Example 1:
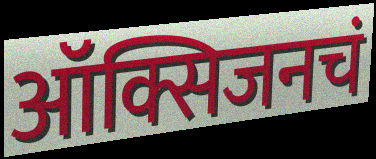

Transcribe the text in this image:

ऑक्सिजनचं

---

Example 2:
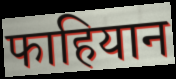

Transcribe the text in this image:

फाहियान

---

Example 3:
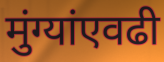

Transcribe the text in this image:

मुंग्यांएवढी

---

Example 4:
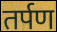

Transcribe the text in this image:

तर्पण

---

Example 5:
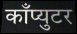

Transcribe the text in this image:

काँप्युटर